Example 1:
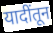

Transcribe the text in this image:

यादींतून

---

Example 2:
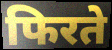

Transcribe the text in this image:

फिरते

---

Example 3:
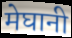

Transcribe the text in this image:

मेघानी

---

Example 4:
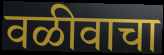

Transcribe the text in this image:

वळीवाचा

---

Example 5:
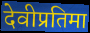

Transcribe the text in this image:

देवीप्रतिमा